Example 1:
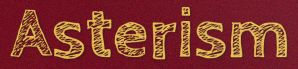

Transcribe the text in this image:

Asterism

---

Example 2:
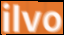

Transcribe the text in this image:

ilvo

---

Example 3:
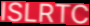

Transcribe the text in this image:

ISLRTC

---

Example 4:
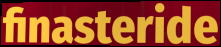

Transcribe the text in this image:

finasteride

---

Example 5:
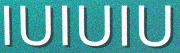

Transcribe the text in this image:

IUIUIU